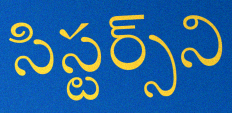
సిస్టర్స్‌ని